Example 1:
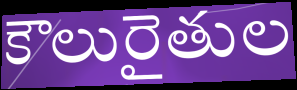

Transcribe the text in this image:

కౌలురైతుల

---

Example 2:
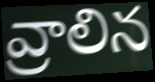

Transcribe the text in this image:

వ్రాలిన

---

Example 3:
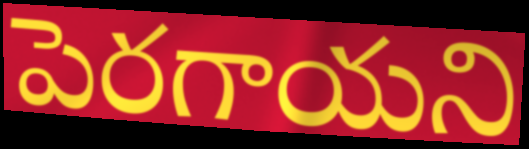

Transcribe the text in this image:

పెరగాయని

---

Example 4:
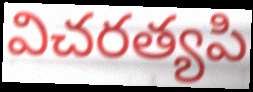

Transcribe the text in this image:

విచరత్యపి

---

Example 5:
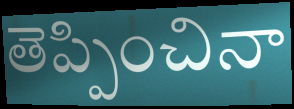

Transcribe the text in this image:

తెప్పించినా